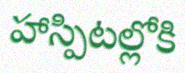
హాస్పిటల్లోకి